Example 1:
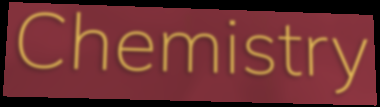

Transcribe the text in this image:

Chemistry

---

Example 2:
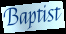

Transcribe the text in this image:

Baptist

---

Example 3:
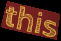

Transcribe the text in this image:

this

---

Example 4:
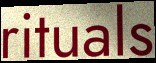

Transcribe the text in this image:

rituals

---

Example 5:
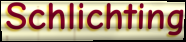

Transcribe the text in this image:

Schlichting